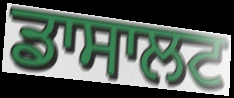
ਡਾਸਾਲਟ